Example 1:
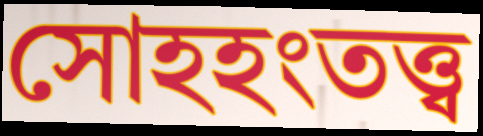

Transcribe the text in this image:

সোহহংতত্ত্ব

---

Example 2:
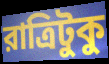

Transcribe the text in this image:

রাত্রিটুকু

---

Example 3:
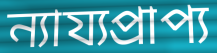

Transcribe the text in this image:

ন্যায্যপ্রাপ্য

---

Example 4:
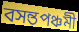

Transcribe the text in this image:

বসন্তপঞ্চমী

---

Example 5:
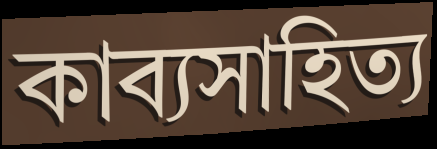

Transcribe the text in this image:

কাব্যসাহিত্য